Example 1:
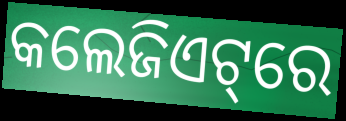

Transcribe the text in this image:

କଲେଜିଏଟ୍‌ରେ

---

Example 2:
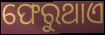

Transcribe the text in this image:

ଫେରୁଥାଏ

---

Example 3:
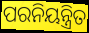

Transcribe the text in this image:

ପରନିୟନ୍ତ୍ରିତ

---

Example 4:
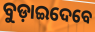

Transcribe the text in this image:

ବୁଡ଼ାଇଦେବେ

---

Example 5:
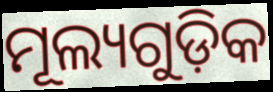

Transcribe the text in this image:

ମୂଲ୍ୟଗୁଡ଼ିକ